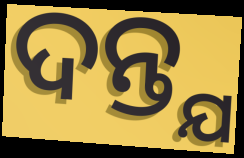
ଦନ୍ତ୍ଯ